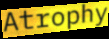
Atrophy